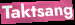
Taktsang